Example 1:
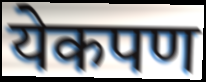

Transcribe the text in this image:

येकपण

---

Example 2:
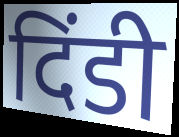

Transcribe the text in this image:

दिंडी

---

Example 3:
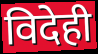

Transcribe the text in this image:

विदेही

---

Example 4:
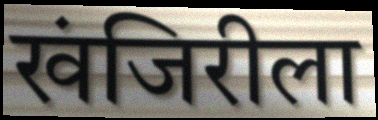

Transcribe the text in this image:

खंजिरीला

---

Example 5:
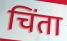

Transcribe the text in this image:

चिंता